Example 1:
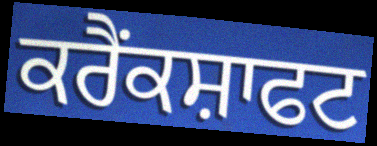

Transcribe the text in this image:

ਕਰੈਂਕਸ਼ਾਫਟ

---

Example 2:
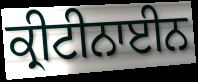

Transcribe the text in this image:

ਕ੍ਰੀਟੀਨਾਈਨ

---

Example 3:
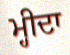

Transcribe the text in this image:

ਮ੍ਹੀਦਾ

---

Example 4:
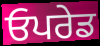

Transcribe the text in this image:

ਓਪਰੇਡ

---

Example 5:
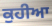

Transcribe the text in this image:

ਕੁਹੀਆ